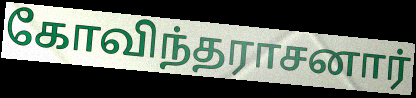
கோவிந்தராசனார்